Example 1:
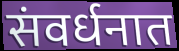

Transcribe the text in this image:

संवर्धनात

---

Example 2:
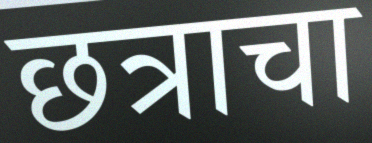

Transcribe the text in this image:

छत्राचा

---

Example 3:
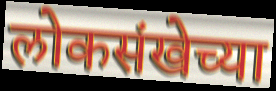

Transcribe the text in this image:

लोकसंखेच्या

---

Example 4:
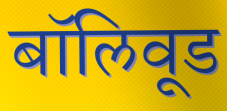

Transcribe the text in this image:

बॉलिवूड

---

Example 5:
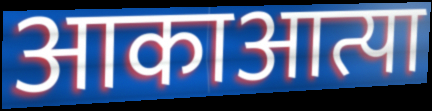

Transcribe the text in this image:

आकाआत्या